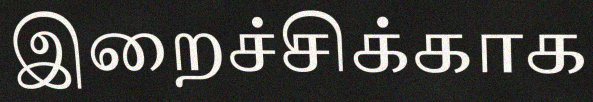
இறைச்சிக்காக